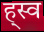
ह्स्व